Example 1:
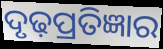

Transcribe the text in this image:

ଦୃଢ଼ପ୍ରତିଜ୍ଞାର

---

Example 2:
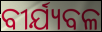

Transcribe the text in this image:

ବୀର୍ଯ୍ୟବଳ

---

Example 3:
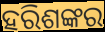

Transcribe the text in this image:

ହରିଶଙ୍କର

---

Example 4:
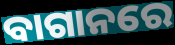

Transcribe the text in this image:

ବାଗାନରେ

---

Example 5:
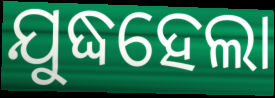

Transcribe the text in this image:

ଯୁଦ୍ଧହେଲା